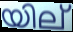
യില്